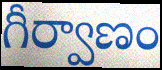
గీర్వాణం